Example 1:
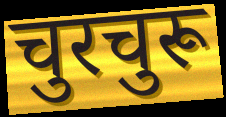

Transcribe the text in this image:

चुरचुरू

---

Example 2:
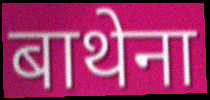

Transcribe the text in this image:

बाथेना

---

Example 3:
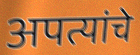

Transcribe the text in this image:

अपत्यांचे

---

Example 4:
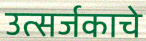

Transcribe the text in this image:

उत्सर्जकाचे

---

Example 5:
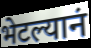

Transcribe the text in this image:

भेटल्यानं